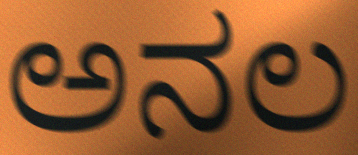
ಅನಲ